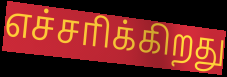
எச்சரிக்கிறது